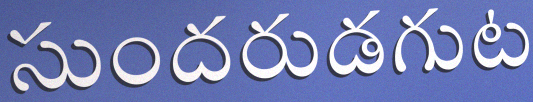
సుందరుడగుట